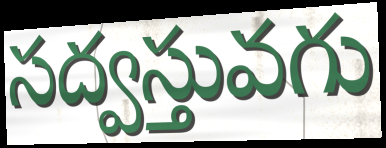
సద్వస్తువగు